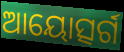
ଆୟୋତ୍ସର୍ଗ